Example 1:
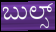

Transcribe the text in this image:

ಬುಲ್ಸ್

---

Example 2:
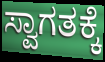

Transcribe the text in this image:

ಸ್ವಾಗತಕ್ಕೆ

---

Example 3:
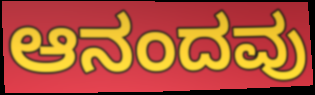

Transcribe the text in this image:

ಆನಂದವು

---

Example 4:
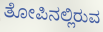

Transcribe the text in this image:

ತೋಪಿನಲ್ಲಿರುವ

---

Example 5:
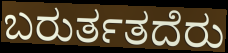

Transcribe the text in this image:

ಬರುರ್ತತದೆರು